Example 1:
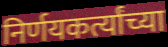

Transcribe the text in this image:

निर्णयकर्त्यांच्या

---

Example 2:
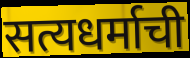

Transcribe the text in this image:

सत्यधर्माची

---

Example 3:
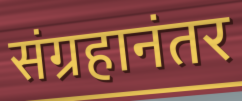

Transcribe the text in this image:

संग्रहानंतर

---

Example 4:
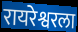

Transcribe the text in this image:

रायरेश्वरला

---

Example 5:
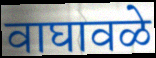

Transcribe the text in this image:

वाघावळे